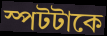
স্পটটাকে